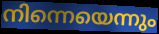
നിന്നെയെന്നും